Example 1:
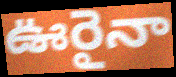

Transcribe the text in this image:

ఊరైనా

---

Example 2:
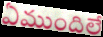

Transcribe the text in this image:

ఏముందిలే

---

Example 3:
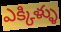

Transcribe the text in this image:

ఎక్కిళ్ళు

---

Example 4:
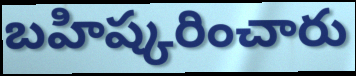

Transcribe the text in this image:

బహిష్కరించారు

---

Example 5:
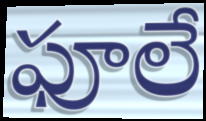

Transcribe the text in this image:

ఫూలే